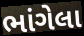
ભાંગેલા